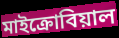
মাইক্রোবিয়াল